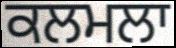
ਕਲਮਲਾ